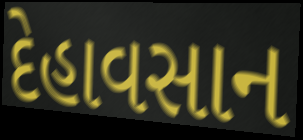
દેહાવસાન